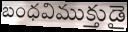
బంధవిముక్తుడై